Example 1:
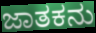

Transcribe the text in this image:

ಜಾತಕನು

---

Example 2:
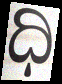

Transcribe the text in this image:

ಧಿ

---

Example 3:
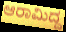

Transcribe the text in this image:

ಆರಾಮಿದ್ದ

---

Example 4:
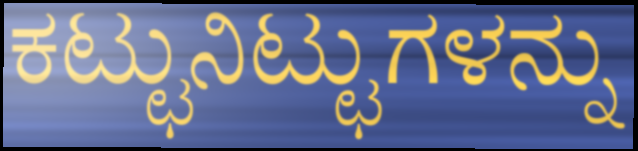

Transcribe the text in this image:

ಕಟ್ಟುನಿಟ್ಟುಗಳನ್ನು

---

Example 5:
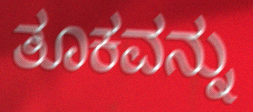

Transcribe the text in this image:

ತೂಕವನ್ನು